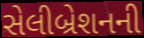
સેલીબ્રેશનની